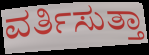
ವರ್ತಿಸುತ್ತಾ